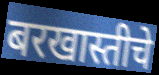
बरखास्तीचे